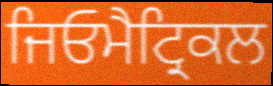
ਜਿਓਮੈਟ੍ਰਿਕਲ